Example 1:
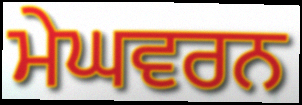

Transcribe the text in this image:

ਮੇਘਵਰਨ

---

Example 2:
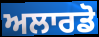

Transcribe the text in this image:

ਅਲਾਰਡੋ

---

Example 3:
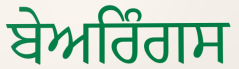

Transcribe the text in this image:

ਬੇਅਰਿੰਗਸ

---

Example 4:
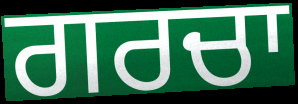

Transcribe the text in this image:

ਗਰਚਾ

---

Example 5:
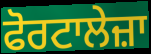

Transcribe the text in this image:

ਫੋਰਟਾਲੇਜ਼ਾ